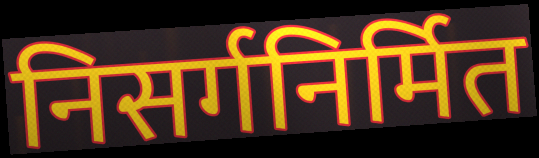
निसर्गनिर्मित